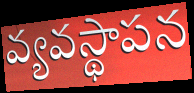
వ్యవస్థాపన